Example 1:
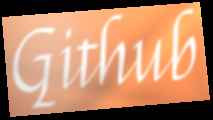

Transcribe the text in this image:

Github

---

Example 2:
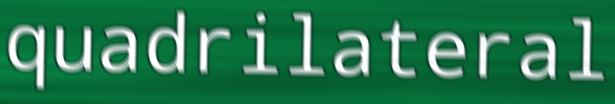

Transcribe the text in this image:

quadrilateral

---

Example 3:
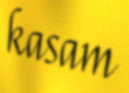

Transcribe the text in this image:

kasam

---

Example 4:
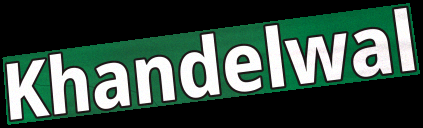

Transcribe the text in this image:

Khandelwal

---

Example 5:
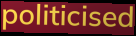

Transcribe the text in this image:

politicised